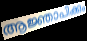
ആജ്ഞാപിക്കും